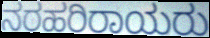
ನರಹರಿರಾಯರು